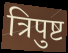
त्रिपुष्ट